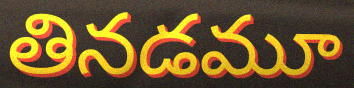
తినడమూ